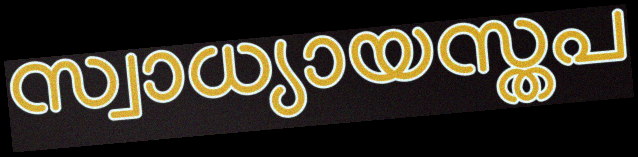
സ്വാധ്യായസ്തപ